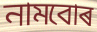
নামবোৰ